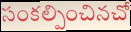
సంకల్పించినచో